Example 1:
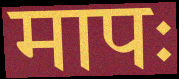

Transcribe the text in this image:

मापः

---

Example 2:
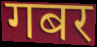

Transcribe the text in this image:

गबर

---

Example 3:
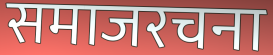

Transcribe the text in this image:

समाजरचना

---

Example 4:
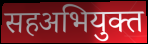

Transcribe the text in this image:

सहअभियुक्त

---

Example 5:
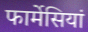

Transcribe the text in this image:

फार्मेसियां